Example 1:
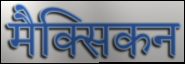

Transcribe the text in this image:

मैक्सिकन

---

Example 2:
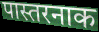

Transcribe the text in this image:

पास्तरनाक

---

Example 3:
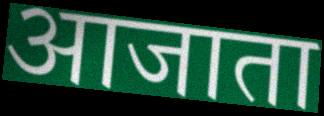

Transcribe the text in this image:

आजाता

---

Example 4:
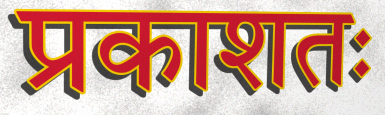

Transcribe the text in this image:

प्रकाशतः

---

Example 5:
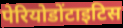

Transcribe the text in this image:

पेरियोडोंटाइटिस